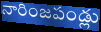
నారింజపండ్లు